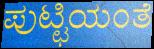
ಪುಟ್ಟಿಯಂತೆ